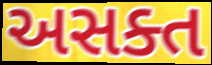
અસક્ત